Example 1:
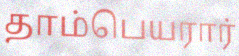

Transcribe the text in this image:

தாம்பெயரார்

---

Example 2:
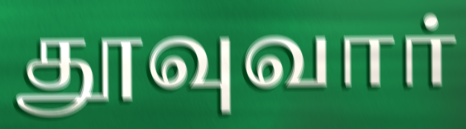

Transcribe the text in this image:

தூவுவார்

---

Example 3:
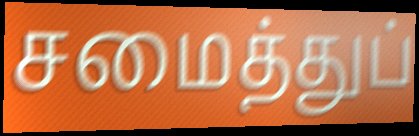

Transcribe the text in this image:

சமைத்துப்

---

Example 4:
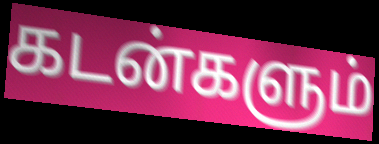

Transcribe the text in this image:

கடன்களும்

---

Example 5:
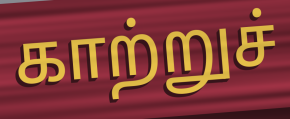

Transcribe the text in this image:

காற்றுச்